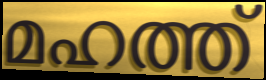
മഹത്ത്